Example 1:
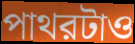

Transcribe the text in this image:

পাথরটাও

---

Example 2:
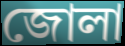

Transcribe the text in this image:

জোলা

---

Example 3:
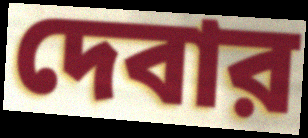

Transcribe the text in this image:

দেবার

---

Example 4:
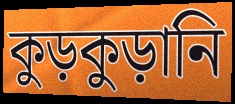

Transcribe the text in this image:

কুড়কুড়ানি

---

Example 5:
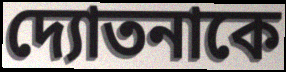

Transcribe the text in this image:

দ্যোতনাকে